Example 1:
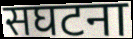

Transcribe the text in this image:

सघटना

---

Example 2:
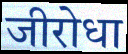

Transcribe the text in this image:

जीरोधा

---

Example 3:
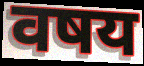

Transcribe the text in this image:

वषय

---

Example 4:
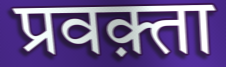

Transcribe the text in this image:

प्रवक़्ता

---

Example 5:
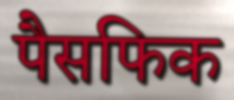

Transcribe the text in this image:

पैसफिक